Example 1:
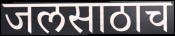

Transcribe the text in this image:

जलसाठाच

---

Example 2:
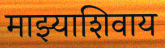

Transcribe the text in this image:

माझ्याशिवाय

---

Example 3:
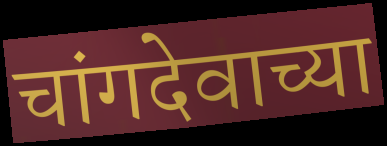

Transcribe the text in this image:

चांगदेवाच्या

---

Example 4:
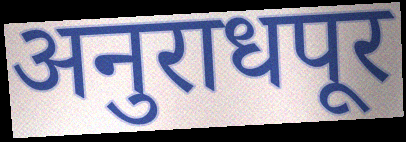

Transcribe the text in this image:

अनुराधपूर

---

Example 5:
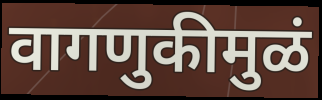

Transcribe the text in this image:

वागणुकीमुळं